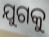
ଯୁଗକୁ